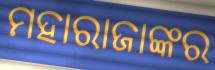
ମହାରାଜାଙ୍କର